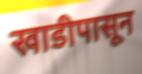
खाडीपासून